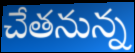
చేతనున్న